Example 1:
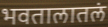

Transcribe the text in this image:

भवतालातलं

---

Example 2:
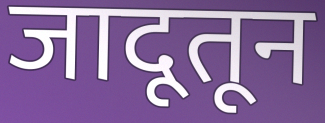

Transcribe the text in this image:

जादूतून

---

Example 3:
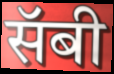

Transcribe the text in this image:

सॅबी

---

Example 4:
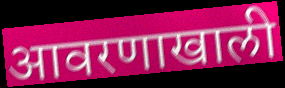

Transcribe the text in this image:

आवरणाखाली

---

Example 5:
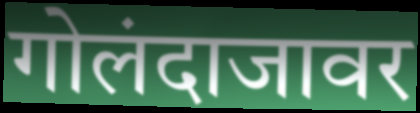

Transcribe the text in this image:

गोलंदाजावर